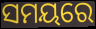
ସମୟରେ